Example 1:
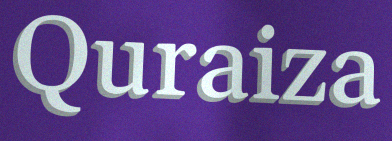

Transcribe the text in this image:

Quraiza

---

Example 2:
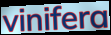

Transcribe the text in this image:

vinifera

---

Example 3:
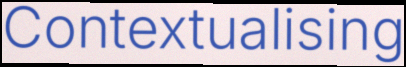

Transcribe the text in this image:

Contextualising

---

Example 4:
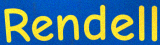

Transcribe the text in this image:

Rendell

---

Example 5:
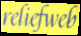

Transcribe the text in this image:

reliefweb